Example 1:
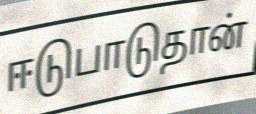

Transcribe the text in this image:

ஈடுபாடுதான்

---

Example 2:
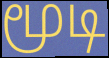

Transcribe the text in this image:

மூடி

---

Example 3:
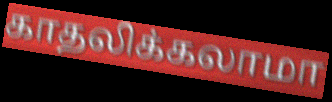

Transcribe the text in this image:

காதலிக்கலாமா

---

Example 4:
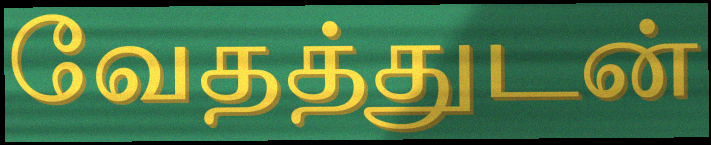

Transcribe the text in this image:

வேதத்துடன்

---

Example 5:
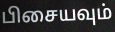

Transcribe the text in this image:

பிசையவும்